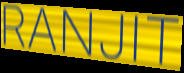
RANJIT